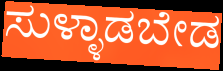
ಸುಳ್ಳಾಡಬೇಡ